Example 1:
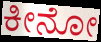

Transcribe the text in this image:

ಕೀನೋ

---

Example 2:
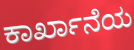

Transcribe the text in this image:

ಕಾರ್ಖಾನೆಯ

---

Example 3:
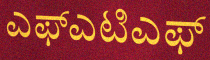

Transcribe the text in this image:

ಎಫ್ಎಟಿಎಫ್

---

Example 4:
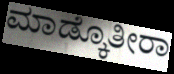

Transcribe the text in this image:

ಮಾಡ್ಕೊತೀರಾ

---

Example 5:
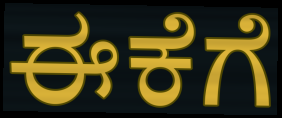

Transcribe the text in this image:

ಈಕೆಗೆ